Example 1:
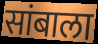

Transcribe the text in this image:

सांबाला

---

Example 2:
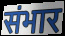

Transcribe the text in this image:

संभार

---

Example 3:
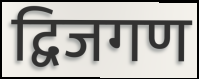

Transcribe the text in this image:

द्विजगण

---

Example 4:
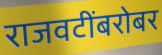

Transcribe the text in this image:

राजवटींबरोबर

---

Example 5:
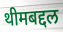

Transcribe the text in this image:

थीमबद्दल